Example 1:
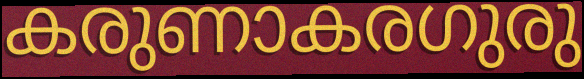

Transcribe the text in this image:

കരുണാകരഗുരു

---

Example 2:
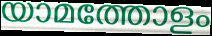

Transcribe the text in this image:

യാമത്തോളം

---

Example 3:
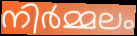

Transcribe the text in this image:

നിർമ്മലം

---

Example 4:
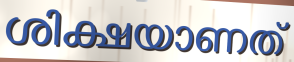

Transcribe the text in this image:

ശിക്ഷയാണത്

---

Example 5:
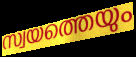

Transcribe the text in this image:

സ്വയത്തെയും